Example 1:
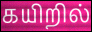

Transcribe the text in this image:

கயிறில்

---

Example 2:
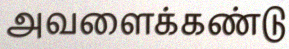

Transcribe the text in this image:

அவளைக்கண்டு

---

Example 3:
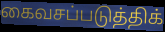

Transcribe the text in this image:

கைவசப்படுத்திக்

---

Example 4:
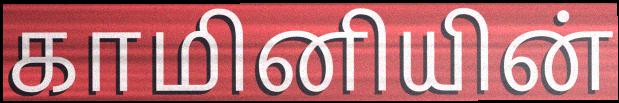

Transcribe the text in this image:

காமினியின்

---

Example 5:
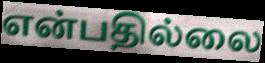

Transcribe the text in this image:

என்பதில்லை